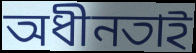
অধীনতাই